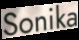
Sonika